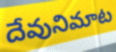
దేవునిమాట